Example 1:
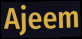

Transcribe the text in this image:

Ajeem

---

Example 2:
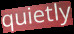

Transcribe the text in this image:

quietly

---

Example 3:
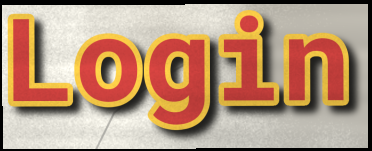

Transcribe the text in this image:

Login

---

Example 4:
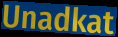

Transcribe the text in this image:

Unadkat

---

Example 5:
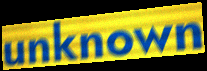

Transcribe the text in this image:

unknown